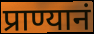
प्राण्यानं